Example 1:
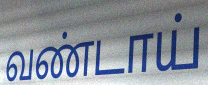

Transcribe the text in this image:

வண்டாய்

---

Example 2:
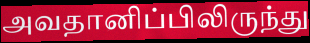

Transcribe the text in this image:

அவதானிப்பிலிருந்து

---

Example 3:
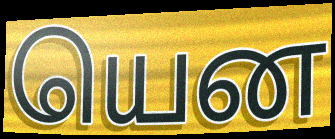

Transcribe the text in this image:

யென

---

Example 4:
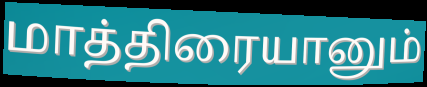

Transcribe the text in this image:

மாத்திரையானும்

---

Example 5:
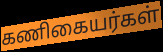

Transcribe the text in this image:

கணிகையர்கள்